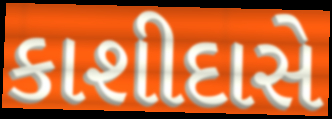
કાશીદાસે